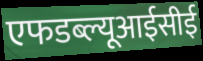
एफडब्ल्यूआईसीई